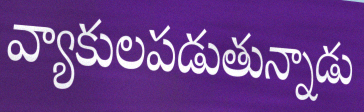
వ్యాకులపడుతున్నాడు